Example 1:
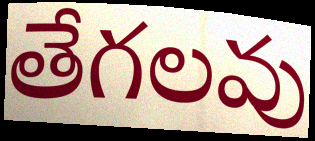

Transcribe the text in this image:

తేగలవు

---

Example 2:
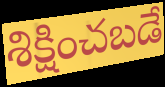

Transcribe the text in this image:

శిక్షించబడే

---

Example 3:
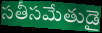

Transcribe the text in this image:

సతీసమేతుడై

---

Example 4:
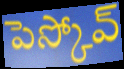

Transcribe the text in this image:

పెస్కోవ్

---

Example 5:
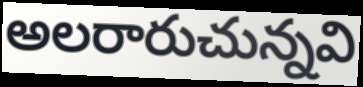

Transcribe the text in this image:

అలరారుచున్నవి